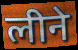
लीने